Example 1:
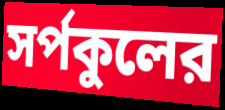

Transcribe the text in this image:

সর্পকুলের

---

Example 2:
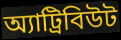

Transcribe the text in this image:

অ্যাট্রিবিউট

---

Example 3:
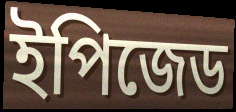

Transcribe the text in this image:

ইপিজেড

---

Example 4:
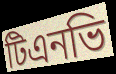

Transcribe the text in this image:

টিএনভি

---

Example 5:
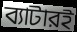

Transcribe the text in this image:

ব্যাটারই